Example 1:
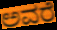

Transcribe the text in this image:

ಅವರೆ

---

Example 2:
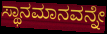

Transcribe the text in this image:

ಸ್ಥಾನಮಾನವನ್ನೇ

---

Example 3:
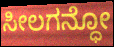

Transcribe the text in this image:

ಸೀಲಗನ್ಧೋ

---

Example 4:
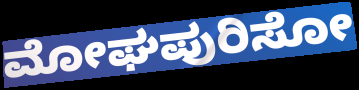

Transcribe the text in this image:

ಮೋಘಪುರಿಸೋ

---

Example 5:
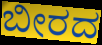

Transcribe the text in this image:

ಬೀರದ